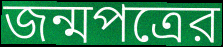
জন্মপত্রের